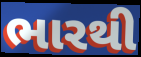
ભારથી